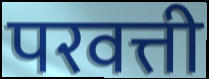
परवत्ती